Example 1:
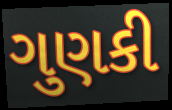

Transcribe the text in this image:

ગુણકી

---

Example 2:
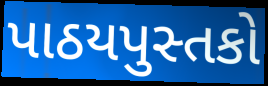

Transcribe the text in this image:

પાઠયપુસ્તકો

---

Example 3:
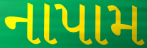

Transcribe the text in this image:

નાપામ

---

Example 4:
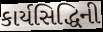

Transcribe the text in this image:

કાર્યસિદ્ધિની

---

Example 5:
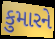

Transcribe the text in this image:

કુમારને